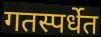
गतस्पर्धेत